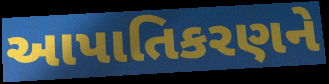
આપાતિકરણને